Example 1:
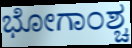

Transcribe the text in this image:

ಭೋಗಾಂಶ್ಚ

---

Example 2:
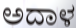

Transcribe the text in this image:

ಅದಾಳ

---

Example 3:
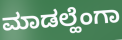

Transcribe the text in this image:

ಮಾಡಲ್ಹೆಂಗಾ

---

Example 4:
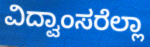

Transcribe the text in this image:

ವಿದ್ವಾಂಸರೆಲ್ಲಾ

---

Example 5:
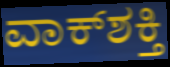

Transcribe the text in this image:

ವಾಕ್‌ಶಕ್ತಿ